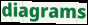
diagrams